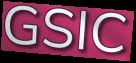
GSIC